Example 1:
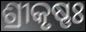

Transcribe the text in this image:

ଶ୍ରୀକୃଷ୍ଣଃ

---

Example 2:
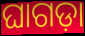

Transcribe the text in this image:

ଘାଗଡ଼ା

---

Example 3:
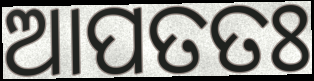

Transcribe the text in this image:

ଆପତତଃ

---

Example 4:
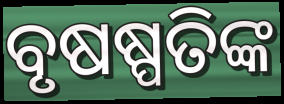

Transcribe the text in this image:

ବୃଷଷ୍ପତିଙ୍କ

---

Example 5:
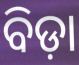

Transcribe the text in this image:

ବିଡ଼ା